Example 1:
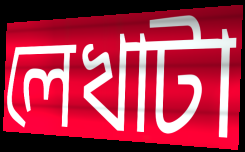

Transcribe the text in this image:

লেখাটা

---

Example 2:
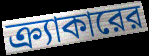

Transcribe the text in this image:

ক্র্যাকারের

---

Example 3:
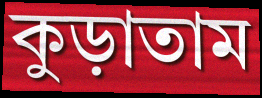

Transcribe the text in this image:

কুড়াতাম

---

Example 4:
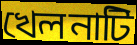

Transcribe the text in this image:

খেলনাটি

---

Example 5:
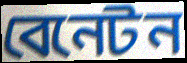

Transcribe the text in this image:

বেনেটন